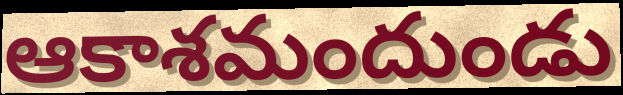
ఆకాశమందుండు